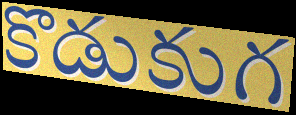
కొడుకుగ